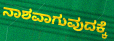
ನಾಶವಾಗುವುದಕ್ಕೆ